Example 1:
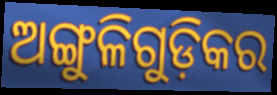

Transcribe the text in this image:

ଅଙ୍ଗୁଳିଗୁଡ଼ିକର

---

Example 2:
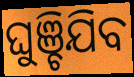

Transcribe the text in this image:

ଘୁଞ୍ଚିଯିବ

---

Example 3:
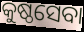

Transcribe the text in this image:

କୁଷ୍ଠସେବା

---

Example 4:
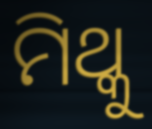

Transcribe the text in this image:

ମିଥ୍କୁ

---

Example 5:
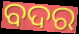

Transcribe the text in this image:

ବଦର